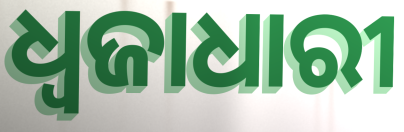
ଧ୍ବଜାଧାରୀ